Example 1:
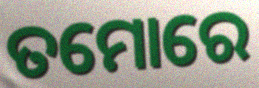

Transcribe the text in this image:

ତମୋରେ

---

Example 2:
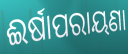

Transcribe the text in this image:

ଈର୍ଷାପରାୟଣା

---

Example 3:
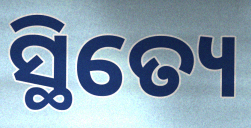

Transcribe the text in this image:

ସ୍ଥିତ୍ୟେ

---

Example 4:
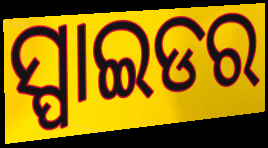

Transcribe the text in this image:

ସ୍ପାଇଡର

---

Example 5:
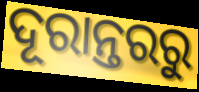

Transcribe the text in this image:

ଦୂରାନ୍ତରରୁ